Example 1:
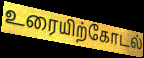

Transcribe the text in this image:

உரையிற்கோடல்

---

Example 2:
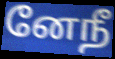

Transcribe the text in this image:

னேநீ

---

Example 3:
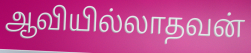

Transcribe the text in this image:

ஆவியில்லாதவன்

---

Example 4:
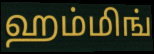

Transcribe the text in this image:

ஹம்மிங்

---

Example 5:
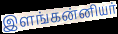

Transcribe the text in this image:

இளங்கன்னியர்